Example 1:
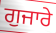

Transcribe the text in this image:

ਗੁਜਾਰੇ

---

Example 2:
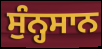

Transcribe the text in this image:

ਸੁੰਨ੍ਹਸਾਨ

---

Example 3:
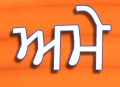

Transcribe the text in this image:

ਅਮੇ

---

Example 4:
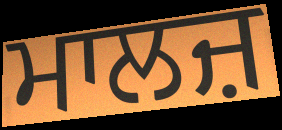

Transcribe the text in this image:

ਮਾਲਜ਼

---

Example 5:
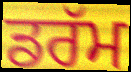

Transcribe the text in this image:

ਡਰੱਮ